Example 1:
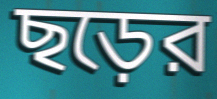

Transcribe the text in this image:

ছড়ের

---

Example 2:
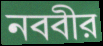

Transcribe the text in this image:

নববীর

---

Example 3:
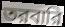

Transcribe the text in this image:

তরবারি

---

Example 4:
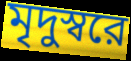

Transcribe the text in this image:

মৃদুস্বরে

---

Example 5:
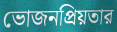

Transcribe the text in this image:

ভোজনপ্রিয়তার